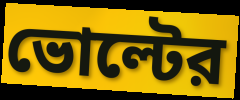
ভোল্টের